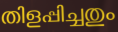
തിളപ്പിച്ചതും